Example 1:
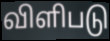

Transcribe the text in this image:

விளிபடு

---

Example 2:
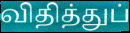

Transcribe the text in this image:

விதித்துப்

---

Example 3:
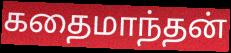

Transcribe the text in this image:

கதைமாந்தன்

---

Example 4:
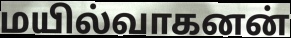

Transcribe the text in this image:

மயில்வாகனன்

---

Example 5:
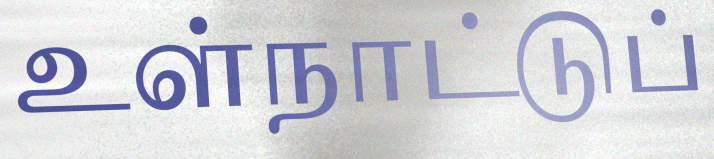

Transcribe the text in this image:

உள்நாட்டுப்